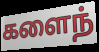
களைந்